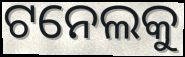
ଟନେଲକୁ